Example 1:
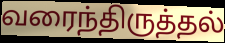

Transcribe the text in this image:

வரைந்திருத்தல்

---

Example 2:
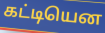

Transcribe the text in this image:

கட்டியென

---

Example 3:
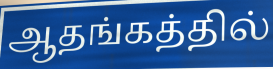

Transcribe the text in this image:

ஆதங்கத்தில்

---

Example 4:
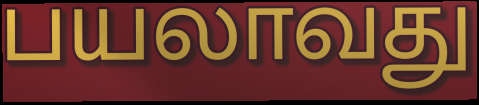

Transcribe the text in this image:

பயலாவது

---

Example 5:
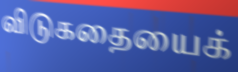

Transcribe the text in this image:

விடுகதையைக்